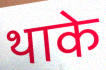
थाके